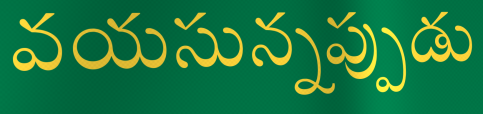
వయసున్నప్పుడు